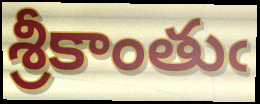
శ్రీకాంతుఁ